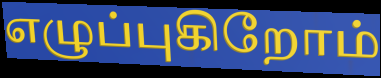
எழுப்புகிறோம்